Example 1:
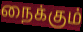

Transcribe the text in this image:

நைக்கும்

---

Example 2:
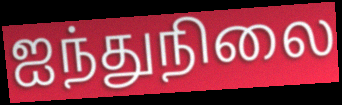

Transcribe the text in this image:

ஐந்துநிலை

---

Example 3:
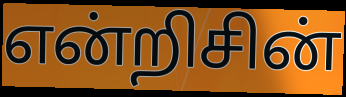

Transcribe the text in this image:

என்றிசின்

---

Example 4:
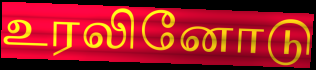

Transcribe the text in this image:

உரலினோடு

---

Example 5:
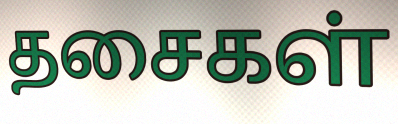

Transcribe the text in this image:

தசைகள்